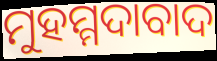
ମୁହମ୍ମଦାବାଦ